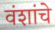
वंशांचे